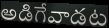
అడిగేవాడట